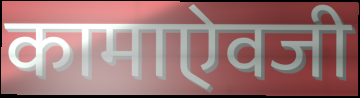
कामाऐवजी